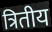
त्रितीय